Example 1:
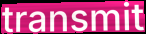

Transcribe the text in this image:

transmit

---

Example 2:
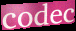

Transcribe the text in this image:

codec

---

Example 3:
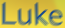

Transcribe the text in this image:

Luke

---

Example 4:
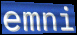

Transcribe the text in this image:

emni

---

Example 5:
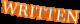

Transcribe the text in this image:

WRITTEN